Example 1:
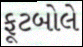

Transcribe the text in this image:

ફૂટબોલે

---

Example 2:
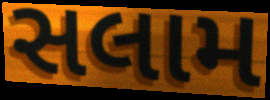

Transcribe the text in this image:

સલામ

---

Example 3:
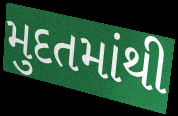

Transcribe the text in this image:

મુદતમાંથી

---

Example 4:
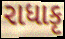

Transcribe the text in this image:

રાધાકૃ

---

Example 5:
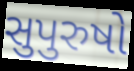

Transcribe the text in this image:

સુપુરુષો